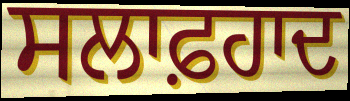
ਸਲਾਫ਼ਹਾਦ